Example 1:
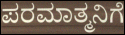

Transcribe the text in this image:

ಪರಮಾತ್ಮನಿಗೆ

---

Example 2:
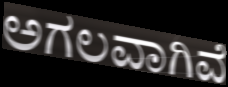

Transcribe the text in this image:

ಅಗಲವಾಗಿವೆ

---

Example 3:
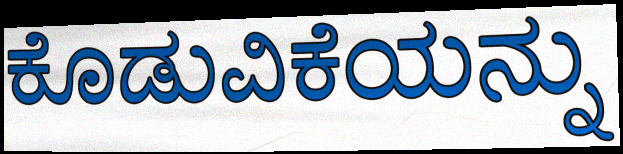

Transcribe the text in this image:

ಕೊಡುವಿಕೆಯನ್ನು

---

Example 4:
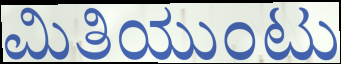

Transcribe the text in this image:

ಮಿತಿಯುಂಟು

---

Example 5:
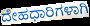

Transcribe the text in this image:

ದೇಹಧಾರಿಗಳಾಗಿ